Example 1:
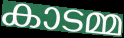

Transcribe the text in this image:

കാടമ്മ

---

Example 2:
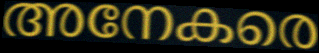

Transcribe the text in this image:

അനേകരെ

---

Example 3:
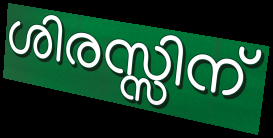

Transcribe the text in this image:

ശിരസ്സിന്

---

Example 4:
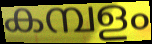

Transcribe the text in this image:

കമ്പളം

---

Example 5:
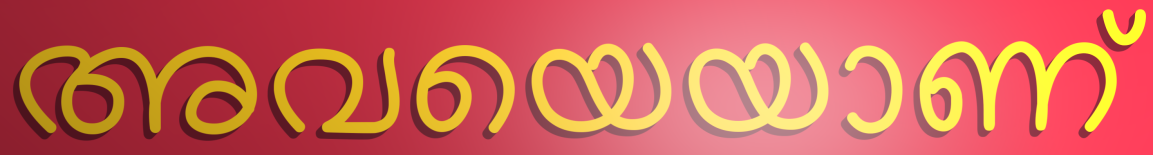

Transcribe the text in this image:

അവയെയാണ്